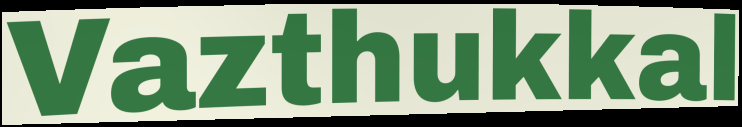
Vazthukkal